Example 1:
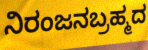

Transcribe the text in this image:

ನಿರಂಜನಬ್ರಹ್ಮದ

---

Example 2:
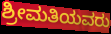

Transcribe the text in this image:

ಶ್ರೀಮತಿಯವರು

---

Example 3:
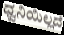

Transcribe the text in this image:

ಧ್ವನಿಯಿಲ್ಲದೆ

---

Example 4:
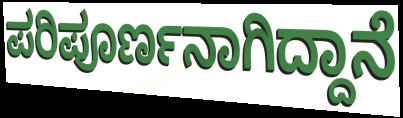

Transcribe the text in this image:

ಪರಿಪೂರ್ಣನಾಗಿದ್ದಾನೆ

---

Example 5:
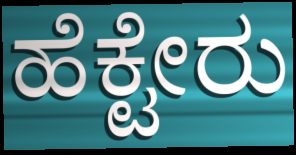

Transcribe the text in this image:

ಹೆಕ್ಟೇರು